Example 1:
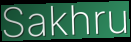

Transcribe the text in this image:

Sakhru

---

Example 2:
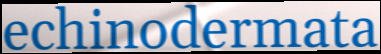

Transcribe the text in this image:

echinodermata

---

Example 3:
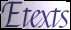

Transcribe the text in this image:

Etexts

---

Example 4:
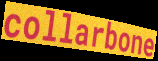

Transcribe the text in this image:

collarbone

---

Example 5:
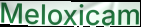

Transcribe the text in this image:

Meloxicam